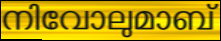
നിവോലുമാബ്